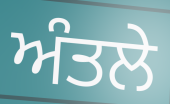
ਅੰਤਲੇ